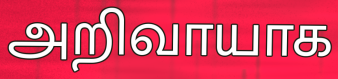
அறிவாயாக